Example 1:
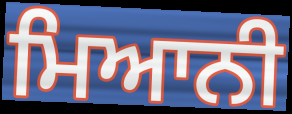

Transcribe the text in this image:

ਮਿਆਨੀ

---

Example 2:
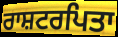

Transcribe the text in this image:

ਰਾਸ਼ਟਰਪਿਤਾ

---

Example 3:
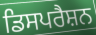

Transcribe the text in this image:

ਡਿਸਪਰੈਸ਼ਨ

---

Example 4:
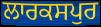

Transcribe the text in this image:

ਲਾਰਕਸਪੁਰ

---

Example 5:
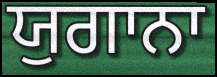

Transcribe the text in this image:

ਯੁਗਾਨਾ